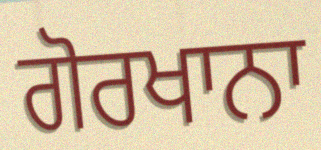
ਗੋਰਖਾਨਾ